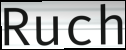
Ruch